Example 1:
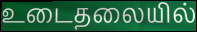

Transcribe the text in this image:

உடைதலையில்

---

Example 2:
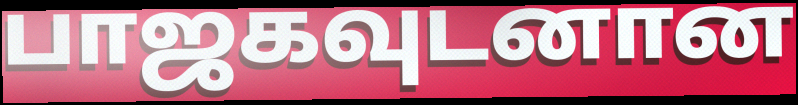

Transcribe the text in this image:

பாஜகவுடனான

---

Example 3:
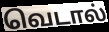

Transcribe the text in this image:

வெடால்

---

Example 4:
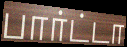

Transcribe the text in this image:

பார்ட்டா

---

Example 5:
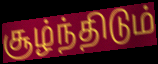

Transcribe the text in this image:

சூழ்ந்திடும்